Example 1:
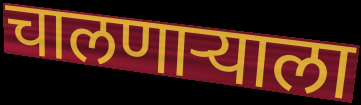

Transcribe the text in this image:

चालणाऱ्याला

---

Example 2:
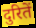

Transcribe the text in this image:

दुरितें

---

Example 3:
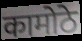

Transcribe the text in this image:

कामोठे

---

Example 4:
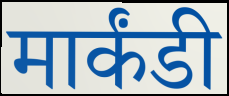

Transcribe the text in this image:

मार्कंडी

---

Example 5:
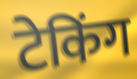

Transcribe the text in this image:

टेकिंग